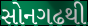
સોનગઢથી